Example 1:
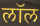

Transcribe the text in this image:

लॉल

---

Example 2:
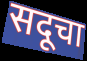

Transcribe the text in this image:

सदूचा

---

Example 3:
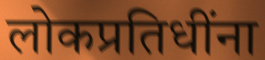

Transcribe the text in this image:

लोकप्रतिधींना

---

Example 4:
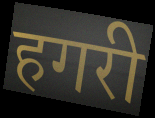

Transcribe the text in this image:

हगरी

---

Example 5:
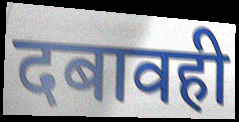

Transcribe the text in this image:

दबावही